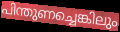
പിന്തുണച്ചെങ്കിലും